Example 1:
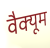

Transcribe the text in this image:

वैक्यूम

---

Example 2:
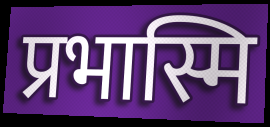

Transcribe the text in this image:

प्रभास्मि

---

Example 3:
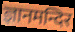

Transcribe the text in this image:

ज्ञानमन्दिर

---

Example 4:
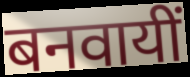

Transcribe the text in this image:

बनवायीं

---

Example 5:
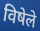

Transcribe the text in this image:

विषेले